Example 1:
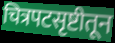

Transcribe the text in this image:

चित्रपटसृष्टीतून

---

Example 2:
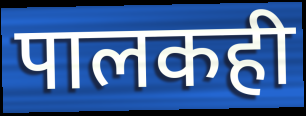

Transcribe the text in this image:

पालकही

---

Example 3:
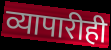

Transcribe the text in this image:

व्यापारीही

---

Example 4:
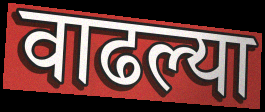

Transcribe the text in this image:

वाढल्या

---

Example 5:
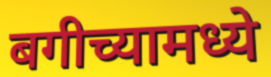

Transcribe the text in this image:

बगीच्यामध्ये